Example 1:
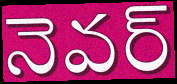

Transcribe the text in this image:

నెవర్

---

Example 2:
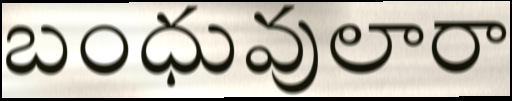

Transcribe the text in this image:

బంధువులారా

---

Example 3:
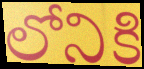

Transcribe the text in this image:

లోనికి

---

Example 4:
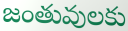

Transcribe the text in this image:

జంతువులకు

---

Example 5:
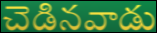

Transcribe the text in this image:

చెడినవాడు